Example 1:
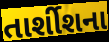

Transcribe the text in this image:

તાર્શીશના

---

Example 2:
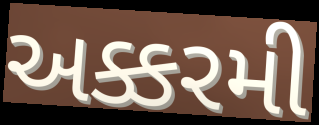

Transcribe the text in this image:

અક્કરમી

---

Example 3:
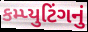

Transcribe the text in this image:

કમ્પ્યુટિંગનું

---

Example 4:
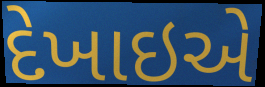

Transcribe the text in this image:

દેખાઇએ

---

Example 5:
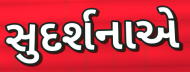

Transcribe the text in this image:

સુદર્શનાએ